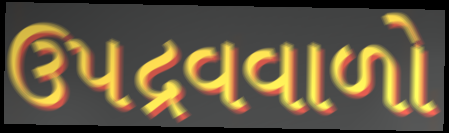
ઉપદ્રવવાળો